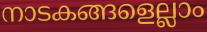
നാടകങ്ങളെല്ലാം